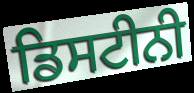
ਡਿਸਟੀਨੀ